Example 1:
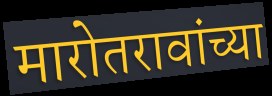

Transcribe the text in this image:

मारोतरावांच्या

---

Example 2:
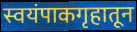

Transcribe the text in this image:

स्वयंपाकगृहातून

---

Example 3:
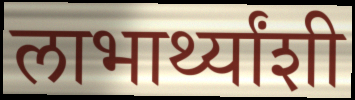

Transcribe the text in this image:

लाभार्थ्यांशी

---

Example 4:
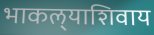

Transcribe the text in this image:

भाकल्याशिवाय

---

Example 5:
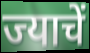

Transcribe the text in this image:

ज्याचें